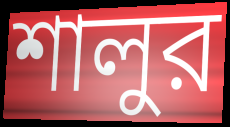
শালুর